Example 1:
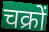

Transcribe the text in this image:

चक्रों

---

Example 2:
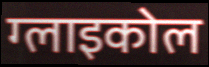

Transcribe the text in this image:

ग्लाइकोल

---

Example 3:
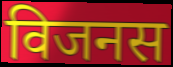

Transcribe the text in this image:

विजनस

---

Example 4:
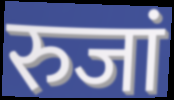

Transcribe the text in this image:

रुजां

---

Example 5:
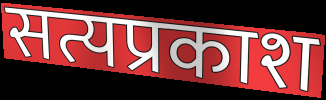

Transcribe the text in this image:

सत्यप्रकाश